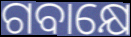
ଗବାକ୍ଷେ